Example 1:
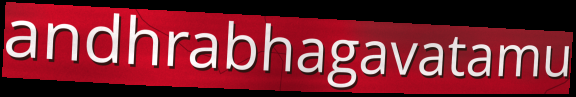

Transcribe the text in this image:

andhrabhagavatamu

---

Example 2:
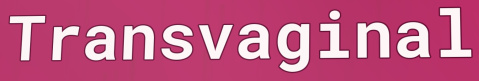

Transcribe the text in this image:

Transvaginal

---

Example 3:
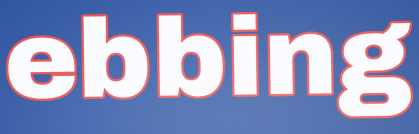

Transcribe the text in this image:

ebbing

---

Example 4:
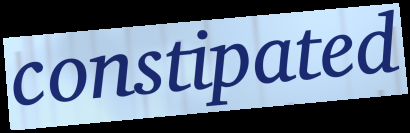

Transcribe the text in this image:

constipated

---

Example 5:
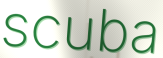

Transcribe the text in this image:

scuba